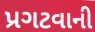
પ્રગટવાની